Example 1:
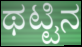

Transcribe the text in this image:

ಥಟ್ಟಿನ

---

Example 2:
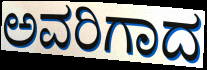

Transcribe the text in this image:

ಅವರಿಗಾದ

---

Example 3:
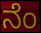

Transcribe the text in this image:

ನೆಂ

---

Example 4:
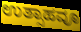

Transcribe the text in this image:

ಉತ್ಸಾಹವೂ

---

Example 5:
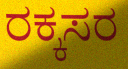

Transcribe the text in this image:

ರಕ್ಕಸರ